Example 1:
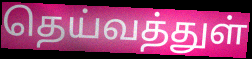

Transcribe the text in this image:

தெய்வத்துள்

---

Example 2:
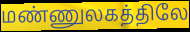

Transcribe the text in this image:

மண்ணுலகத்திலே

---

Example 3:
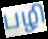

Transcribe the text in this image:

பழி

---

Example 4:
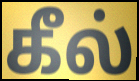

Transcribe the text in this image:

கீல்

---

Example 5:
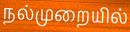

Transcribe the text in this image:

நல்முறையில்